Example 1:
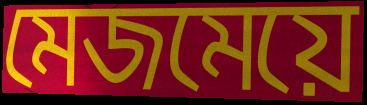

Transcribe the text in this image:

মেজমেয়ে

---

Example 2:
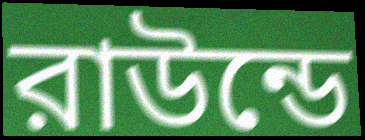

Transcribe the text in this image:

রাউন্ডে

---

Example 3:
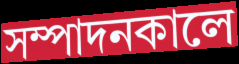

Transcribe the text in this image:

সম্পাদনকালে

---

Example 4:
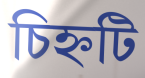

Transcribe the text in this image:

চিহ্নটি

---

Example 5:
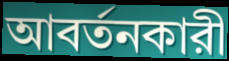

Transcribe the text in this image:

আবর্তনকারী